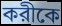
করীকে